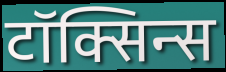
टॉक्सिन्स